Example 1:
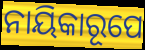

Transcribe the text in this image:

ନାୟିକାରୂପେ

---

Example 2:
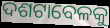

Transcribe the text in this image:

ଦଶଟାବେଳକୁ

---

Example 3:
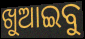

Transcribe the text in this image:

ଖୁଆଇବୁ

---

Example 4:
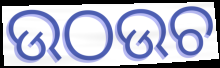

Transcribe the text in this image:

ଉଠଉଚ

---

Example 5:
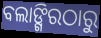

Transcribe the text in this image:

ବଲାଙ୍ଗିରଠାରୁ